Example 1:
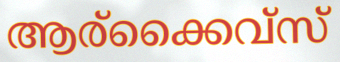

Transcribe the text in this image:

ആര്ക്കൈവ്സ്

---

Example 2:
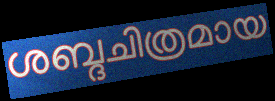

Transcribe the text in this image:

ശബ്ദചിത്രമായ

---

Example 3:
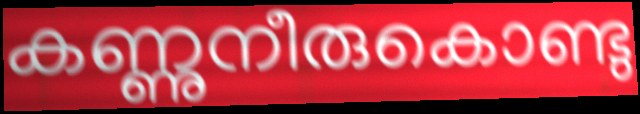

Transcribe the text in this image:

കണ്ണുനീരുകൊണ്ടു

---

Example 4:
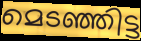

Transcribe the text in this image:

മെടഞ്ഞിട്ട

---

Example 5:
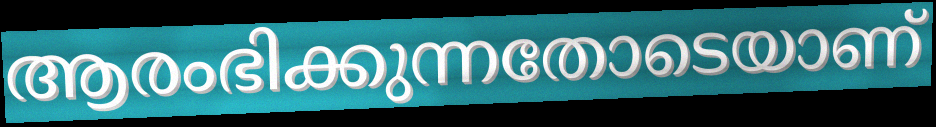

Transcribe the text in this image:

ആരംഭിക്കുന്നതോടെയാണ്